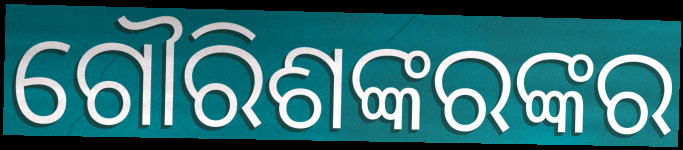
ଗୌରିଶଙ୍କରଙ୍କର